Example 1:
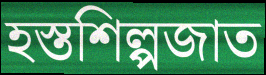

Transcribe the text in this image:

হস্তশিল্পজাত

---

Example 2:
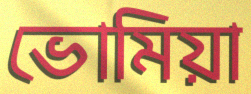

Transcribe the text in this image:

ভোমিয়া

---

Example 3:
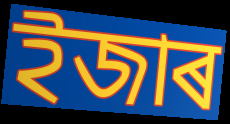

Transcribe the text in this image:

ইজাৰ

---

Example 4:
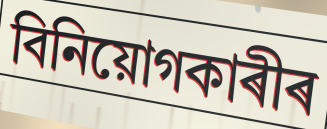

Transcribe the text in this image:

বিনিয়োগকাৰীৰ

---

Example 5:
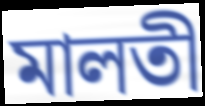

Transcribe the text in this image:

মালতী